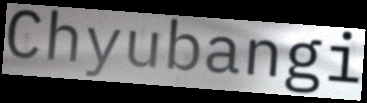
Chyubangi